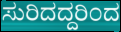
ಸುರಿದದ್ದರಿಂದ